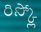
రిస్క్లో